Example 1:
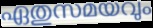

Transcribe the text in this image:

ഏതുസമയവും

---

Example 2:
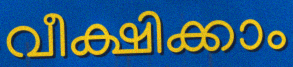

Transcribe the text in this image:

വീക്ഷിക്കാം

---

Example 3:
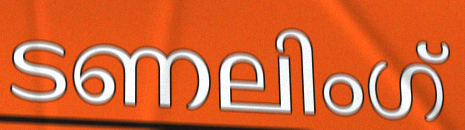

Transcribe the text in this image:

ടണലിംഗ്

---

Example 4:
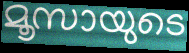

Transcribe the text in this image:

മൂസായുടെ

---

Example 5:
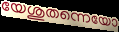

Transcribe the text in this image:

യേശുതന്നെയോ